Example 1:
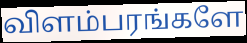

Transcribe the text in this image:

விளம்பரங்களே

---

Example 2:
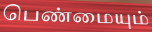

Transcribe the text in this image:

பெண்மையும்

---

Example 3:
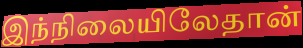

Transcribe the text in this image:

இந்நிலையிலேதான்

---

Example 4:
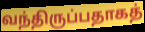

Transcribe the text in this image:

வந்திருப்பதாகத்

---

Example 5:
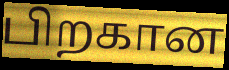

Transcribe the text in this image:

பிறகான